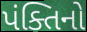
પંક્તિનો